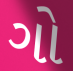
ગો